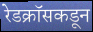
रेडक्रॉसकडून